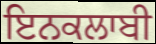
ਇਨਕਲਾਬੀ